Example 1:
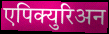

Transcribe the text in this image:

एपिक्युरिअन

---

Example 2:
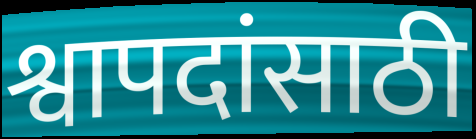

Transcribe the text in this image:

श्वापदांसाठी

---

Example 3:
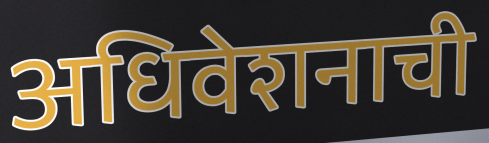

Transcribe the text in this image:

अधिवेशनाची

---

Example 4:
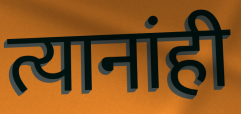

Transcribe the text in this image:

त्यानांही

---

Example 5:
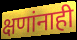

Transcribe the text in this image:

क्षणांनाही